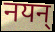
नयन्